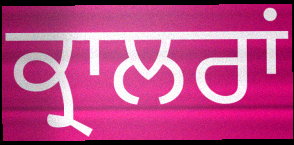
ਕ੍ਰਾਲਰਾਂ